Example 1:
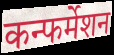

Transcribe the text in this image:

कन्‍फर्मेशन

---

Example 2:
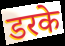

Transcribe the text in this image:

डरके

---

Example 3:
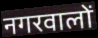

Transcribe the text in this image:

नगरवालों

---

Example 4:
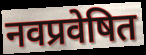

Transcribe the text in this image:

नवप्रवेषित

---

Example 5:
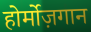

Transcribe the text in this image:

होर्मोज़गान